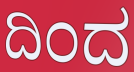
ದಿಂದ